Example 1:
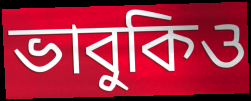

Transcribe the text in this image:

ভাবুকিও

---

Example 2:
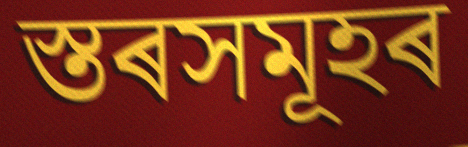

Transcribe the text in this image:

স্তৰসমূহৰ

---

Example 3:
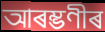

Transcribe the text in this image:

আৰম্ভণীৰ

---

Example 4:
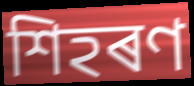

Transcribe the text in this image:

শিহৰণ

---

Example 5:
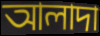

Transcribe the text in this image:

আলাদা